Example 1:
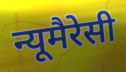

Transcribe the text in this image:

न्यूमैरेसी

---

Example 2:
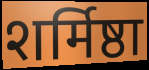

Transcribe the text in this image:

शर्मिष्ठा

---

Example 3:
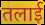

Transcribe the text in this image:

तलाई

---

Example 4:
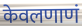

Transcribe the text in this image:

केवलणाणं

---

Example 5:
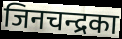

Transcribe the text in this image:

जिनचन्द्रका